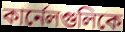
কার্নেলগুলিকে